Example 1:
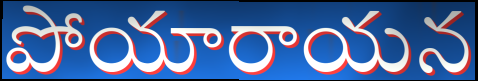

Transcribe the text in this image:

పోయారాయన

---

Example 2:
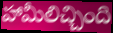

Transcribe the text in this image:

హామీలిచ్చింది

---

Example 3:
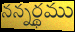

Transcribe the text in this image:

నన్నర్థము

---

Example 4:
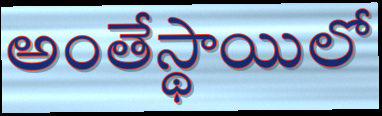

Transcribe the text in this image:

అంతేస్థాయిలో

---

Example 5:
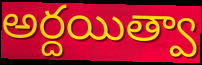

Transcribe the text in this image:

అర్దయిత్వా